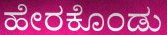
ಹೇರಕೊಂಡು